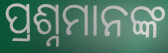
ପ୍ରଶ୍ନମାନଙ୍କ